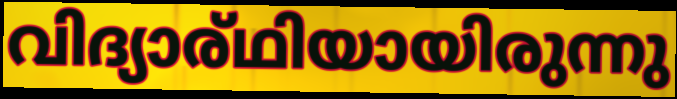
വിദ്യാര്ഥിയായിരുന്നു